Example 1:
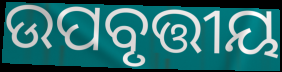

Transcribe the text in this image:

ଉପବୃତ୍ତୀୟ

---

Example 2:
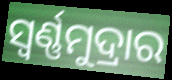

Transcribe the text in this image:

ସ୍ୱର୍ଣ୍ଣମୁଦ୍ରାର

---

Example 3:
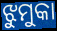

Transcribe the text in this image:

ଝୁମୁକା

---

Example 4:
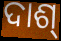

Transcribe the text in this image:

ଦାଶ୍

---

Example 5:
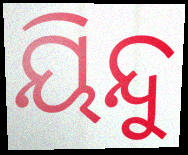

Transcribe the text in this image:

ୟିନ୍ଦୁ